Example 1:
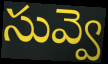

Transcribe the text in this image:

సువ్వె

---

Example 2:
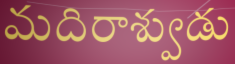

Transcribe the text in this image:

మదిరాశ్వుడు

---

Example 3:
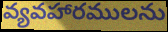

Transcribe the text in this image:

వ్యవహారములను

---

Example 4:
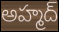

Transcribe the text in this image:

అహ్మద్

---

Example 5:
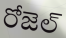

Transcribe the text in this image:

రోజెల్